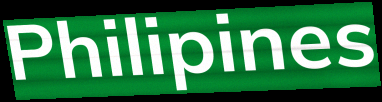
Philipines